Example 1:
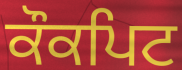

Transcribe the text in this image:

ਕੌਕਪਿਟ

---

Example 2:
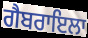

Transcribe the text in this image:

ਗੈਬਰਾਇਲਾ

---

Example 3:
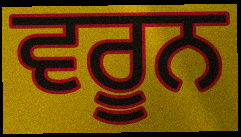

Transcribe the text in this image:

ਵਰੂਨ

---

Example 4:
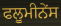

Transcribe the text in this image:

ਫਲੂਮੀਨੇਂਸ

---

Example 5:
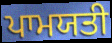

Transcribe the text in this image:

ਪਾਮਯਤੀ